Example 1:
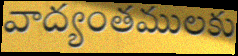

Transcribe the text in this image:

వాద్యంతములకు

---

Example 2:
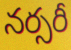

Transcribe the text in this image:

నర్సరీ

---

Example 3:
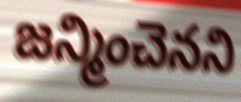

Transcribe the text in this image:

జన్మించెనని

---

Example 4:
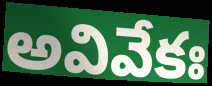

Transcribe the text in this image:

అవివేకః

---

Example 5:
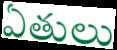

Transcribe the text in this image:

ఏతులు